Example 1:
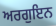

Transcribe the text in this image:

ਅਰਗੁਇਨ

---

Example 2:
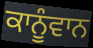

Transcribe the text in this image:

ਕਾਨੂੰਵਾਨ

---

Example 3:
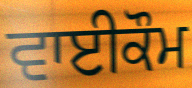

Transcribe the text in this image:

ਵਾਈਕੌਮ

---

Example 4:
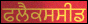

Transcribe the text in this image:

ਫਲੈਕਸਸੀਡ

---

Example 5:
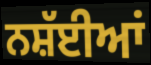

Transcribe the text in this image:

ਨਸ਼ੱਈਆਂ